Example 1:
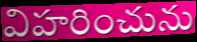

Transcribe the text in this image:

విహరించును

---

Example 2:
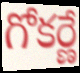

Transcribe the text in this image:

గోకర్ణే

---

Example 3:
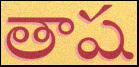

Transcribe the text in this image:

తాష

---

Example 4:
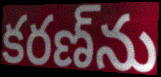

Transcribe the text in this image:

కరణ్‌ను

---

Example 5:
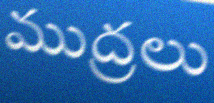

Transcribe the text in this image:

ముద్రలు